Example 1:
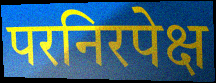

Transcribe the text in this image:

परनिरपेक्ष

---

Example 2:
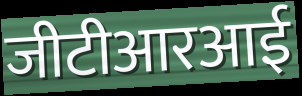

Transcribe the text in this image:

जीटीआरआई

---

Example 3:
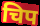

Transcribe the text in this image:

चिप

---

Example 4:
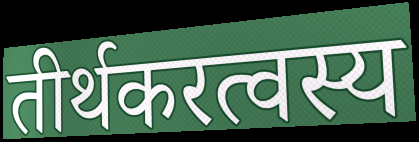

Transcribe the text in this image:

तीर्थकरत्वस्य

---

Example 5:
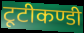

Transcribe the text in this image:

टूटीकण्डी